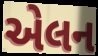
એલન